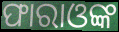
ଫାରାଓଙ୍କ